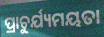
ପ୍ରାଚୁର୍ଯ୍ୟମୟତା